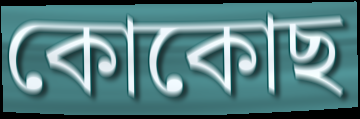
কোকোছ